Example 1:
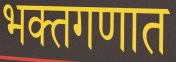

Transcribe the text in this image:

भक्तगणात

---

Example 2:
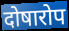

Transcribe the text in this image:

दोषारोप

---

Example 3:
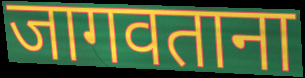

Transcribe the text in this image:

जागवताना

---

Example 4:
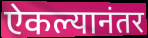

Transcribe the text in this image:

ऐकल्यानंतर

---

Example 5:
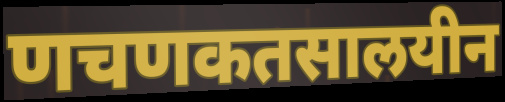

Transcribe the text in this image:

णचणकतसालयीन